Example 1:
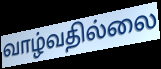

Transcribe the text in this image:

வாழ்வதில்லை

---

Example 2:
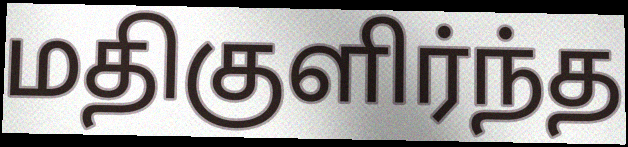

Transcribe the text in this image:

மதிகுளிர்ந்த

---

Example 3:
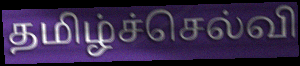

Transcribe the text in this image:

தமிழ்ச்செல்வி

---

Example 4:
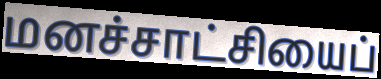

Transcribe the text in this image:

மனச்சாட்சியைப்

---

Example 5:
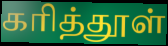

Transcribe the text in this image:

கரித்தூள்